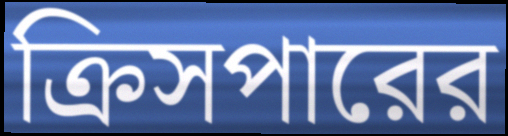
ক্রিসপারের